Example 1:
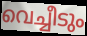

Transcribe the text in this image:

വെച്ചീടും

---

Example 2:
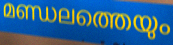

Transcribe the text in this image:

മണ്ഡലത്തെയും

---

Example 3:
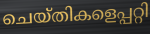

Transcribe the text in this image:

ചെയ്തികളെപ്പറ്റി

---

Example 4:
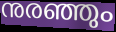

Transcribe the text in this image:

നുരഞ്ഞും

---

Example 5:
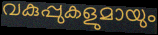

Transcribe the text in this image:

വകുപ്പുകളുമായും